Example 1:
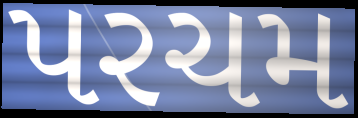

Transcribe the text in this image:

પરચમ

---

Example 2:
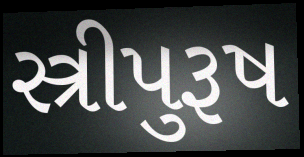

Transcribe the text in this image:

સ્ત્રીપુરૂષ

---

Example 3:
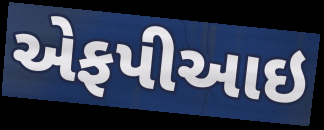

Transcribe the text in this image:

એફપીઆઇ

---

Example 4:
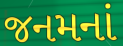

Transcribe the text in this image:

જનમનાં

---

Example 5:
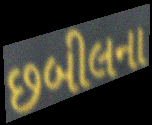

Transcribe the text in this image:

છબીલના